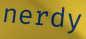
nerdy